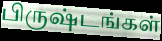
பிருஷ்டங்கள்